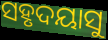
ସହୃଦୟାସୁ